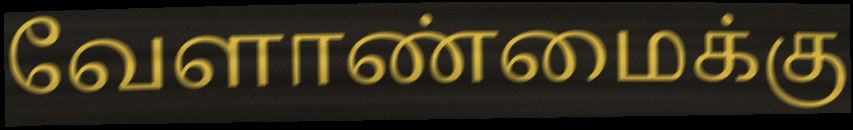
வேளாண்மைக்கு